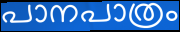
പാനപാത്രം